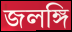
জলঙ্গি